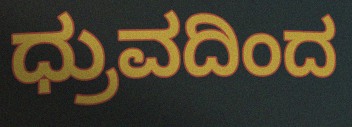
ಧ್ರುವದಿಂದ